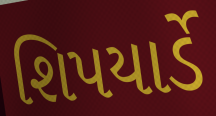
શિપયાર્ડે